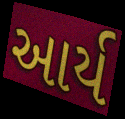
આર્ય